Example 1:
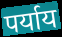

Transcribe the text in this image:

पर्याय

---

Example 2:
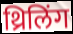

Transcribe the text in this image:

थ्रिलिंग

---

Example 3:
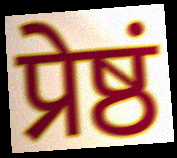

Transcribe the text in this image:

प्रेष्ठं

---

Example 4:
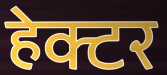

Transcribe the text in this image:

हेक्टर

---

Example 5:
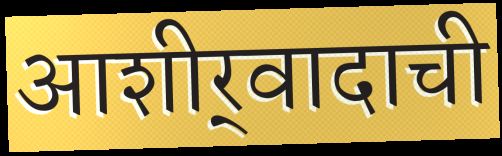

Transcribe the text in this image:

आशीर्वादाची